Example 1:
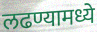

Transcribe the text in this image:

लढण्यामध्ये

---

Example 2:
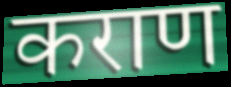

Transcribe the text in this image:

कराण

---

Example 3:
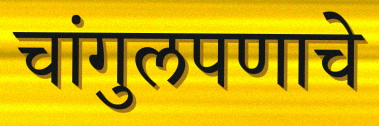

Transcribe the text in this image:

चांगुलपणाचे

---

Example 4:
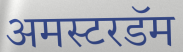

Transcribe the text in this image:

अमस्टरडॅम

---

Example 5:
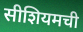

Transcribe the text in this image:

सीशियमची